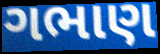
ગભાણ